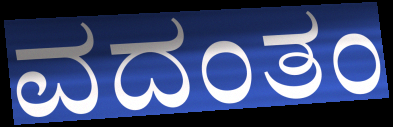
ವದಂತಂ